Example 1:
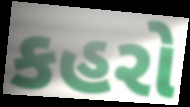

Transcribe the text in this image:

કહરો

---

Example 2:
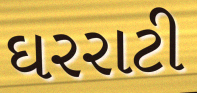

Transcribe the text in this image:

ઘરરાટી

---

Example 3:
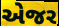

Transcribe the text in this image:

એજર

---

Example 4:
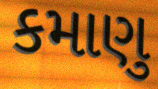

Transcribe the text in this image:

કમાણુ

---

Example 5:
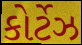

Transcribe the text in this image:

કોર્ટેઝ